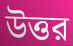
উত্তর